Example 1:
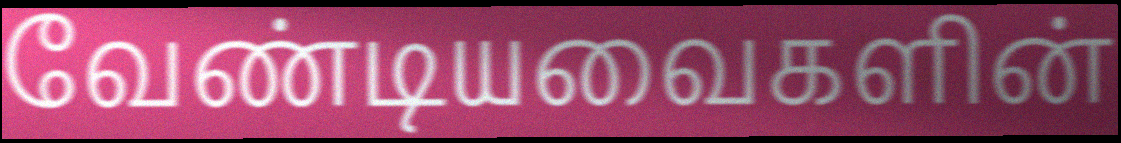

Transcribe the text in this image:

வேண்டியவைகளின்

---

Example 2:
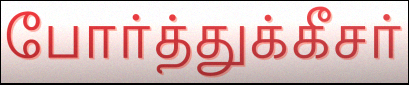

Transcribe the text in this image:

போர்த்துக்கீசர்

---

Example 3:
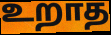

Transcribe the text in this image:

உறாத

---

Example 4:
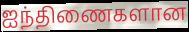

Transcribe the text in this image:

ஐந்திணைகளான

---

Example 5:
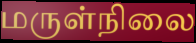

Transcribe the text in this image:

மருள்நிலை